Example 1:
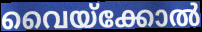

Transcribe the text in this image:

വൈയ്ക്കോൽ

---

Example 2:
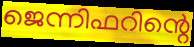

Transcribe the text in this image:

ജെന്നിഫറിന്റെ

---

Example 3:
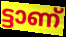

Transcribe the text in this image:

ട്ടാണ്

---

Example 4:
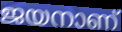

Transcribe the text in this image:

ജയനാണ്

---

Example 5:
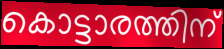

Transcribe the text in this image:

കൊട്ടാരത്തിന്